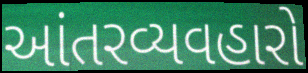
આંતરવ્યવહારો